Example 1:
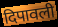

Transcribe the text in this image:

दिपावली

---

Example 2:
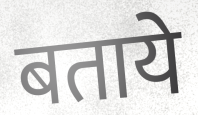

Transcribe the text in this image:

बताये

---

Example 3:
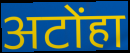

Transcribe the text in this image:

अटोंहा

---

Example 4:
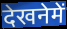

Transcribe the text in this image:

देखनेमें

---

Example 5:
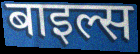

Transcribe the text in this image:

बाइल्स